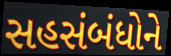
સહસંબંધોને